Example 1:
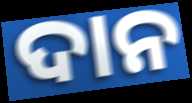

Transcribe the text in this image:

ଦାନ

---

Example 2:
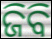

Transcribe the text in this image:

ଜିବି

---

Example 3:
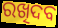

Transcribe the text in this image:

ରଖିଦବ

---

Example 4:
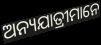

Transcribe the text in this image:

ଅନ୍ୟଯାତ୍ରୀମାନେ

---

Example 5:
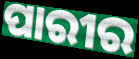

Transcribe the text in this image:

ପାରୀର